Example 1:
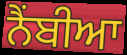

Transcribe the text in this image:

ਨੈਂਬੀਆ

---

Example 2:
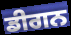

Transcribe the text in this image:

ਡੀਗਨ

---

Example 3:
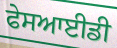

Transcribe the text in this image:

ਫੇਸਆਈਡੀ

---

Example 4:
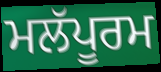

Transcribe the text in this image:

ਮਲੱਪੂਰਮ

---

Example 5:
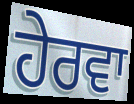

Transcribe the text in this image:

ਹੇਰਵਾ